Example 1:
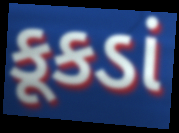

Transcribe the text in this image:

કૂકડાં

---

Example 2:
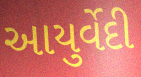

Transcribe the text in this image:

આયુર્વેદી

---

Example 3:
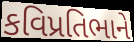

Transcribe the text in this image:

કવિપ્રતિભાને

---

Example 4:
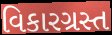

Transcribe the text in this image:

વિકારગ્રસ્ત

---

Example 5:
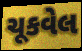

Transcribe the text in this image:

ચૂકવેલ